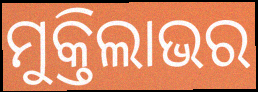
ମୁକ୍ତିଲାଭର